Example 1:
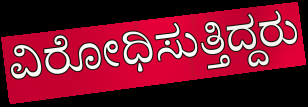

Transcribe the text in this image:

ವಿರೋಧಿಸುತ್ತಿದ್ದರು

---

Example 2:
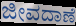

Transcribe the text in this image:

ಜೀವದಾಣೆ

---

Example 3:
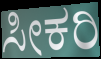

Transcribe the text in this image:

ಸೀಕರಿ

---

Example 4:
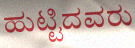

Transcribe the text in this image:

ಹುಟ್ಟಿದವರು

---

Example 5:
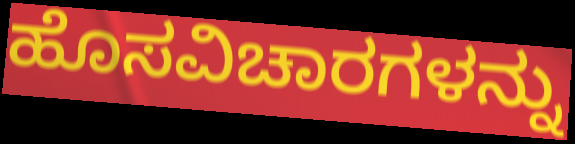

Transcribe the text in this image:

ಹೊಸವಿಚಾರಗಳನ್ನು